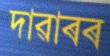
দাৱাৰৰ